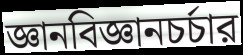
জ্ঞানবিজ্ঞানচর্চার